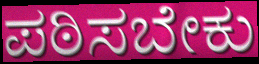
ಪಠಿಸಬೇಕು